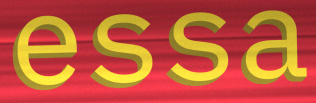
essa